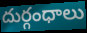
దుర్గంధాలు